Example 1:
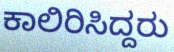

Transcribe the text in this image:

ಕಾಲಿರಿಸಿದ್ದರು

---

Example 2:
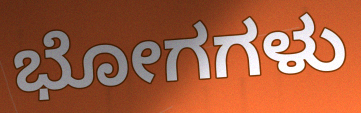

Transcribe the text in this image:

ಭೋಗಗಳು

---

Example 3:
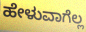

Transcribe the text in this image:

ಹೇಳುವಾಗೆಲ್ಲ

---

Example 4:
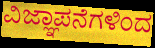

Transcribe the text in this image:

ವಿಜ್ಞಾಪನೆಗಳಿಂದ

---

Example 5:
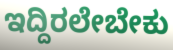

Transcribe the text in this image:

ಇದ್ದಿರಲೇಬೇಕು